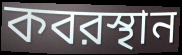
কবরস্থান